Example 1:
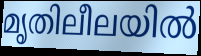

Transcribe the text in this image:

മൃതിലീലയിൽ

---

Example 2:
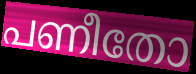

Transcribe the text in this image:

പണീതോ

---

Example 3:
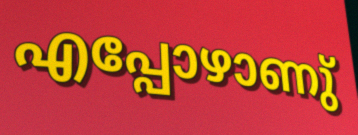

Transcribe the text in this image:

എപ്പോഴാണു്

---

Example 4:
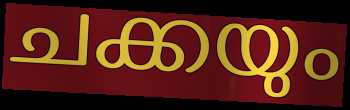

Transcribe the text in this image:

ചക്കയും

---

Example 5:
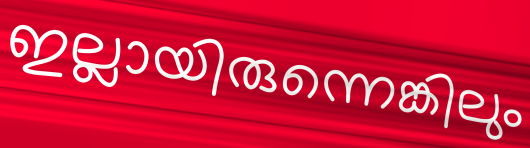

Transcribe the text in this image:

ഇല്ലായിരുന്നെങ്കിലും